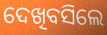
ଦେଖିବସିଲେ